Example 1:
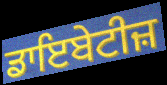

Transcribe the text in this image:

ਡਾਇਬੇਟੀਜ਼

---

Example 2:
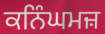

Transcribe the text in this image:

ਕਨਿੰਘਮਜ਼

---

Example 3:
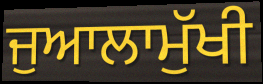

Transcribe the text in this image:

ਜੁਆਲਾਮੁੱਖੀ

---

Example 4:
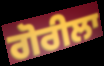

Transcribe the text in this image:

ਗੋਰੀਲਾ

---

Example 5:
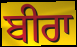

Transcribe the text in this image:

ਬੀਰਾ